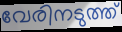
വേരിനടുത്ത്